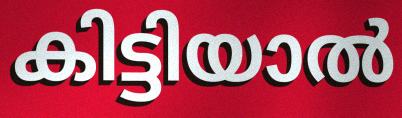
കിട്ടിയാൽ